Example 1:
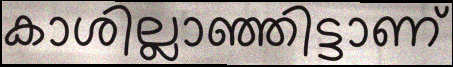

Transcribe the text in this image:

കാശില്ലാഞ്ഞിട്ടാണ്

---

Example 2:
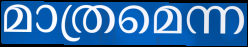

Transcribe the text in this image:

മാത്രമെന്ന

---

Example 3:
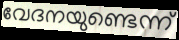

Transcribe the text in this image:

വേദനയുണ്ടെന്ന്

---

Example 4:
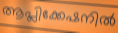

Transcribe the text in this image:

ആപ്ലിക്കേഷനിൽ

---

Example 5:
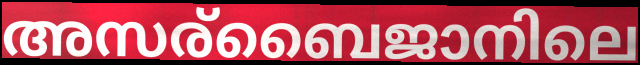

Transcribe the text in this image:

അസര്ബൈജാനിലെ